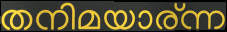
തനിമയാര്ന്ന